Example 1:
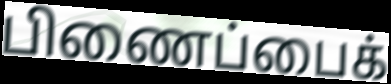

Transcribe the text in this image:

பிணைப்பைக்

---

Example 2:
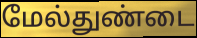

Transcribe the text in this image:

மேல்துண்டை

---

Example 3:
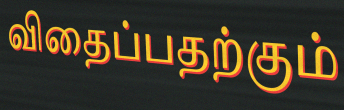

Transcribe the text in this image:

விதைப்பதற்கும்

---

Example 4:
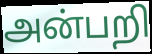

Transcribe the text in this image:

அன்பறி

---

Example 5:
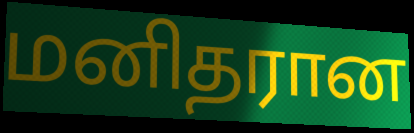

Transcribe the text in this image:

மனிதரான